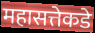
महासत्तेकडे